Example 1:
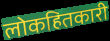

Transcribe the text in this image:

लोकहितकारी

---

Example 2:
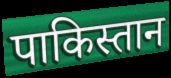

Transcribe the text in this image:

पाकिस्तान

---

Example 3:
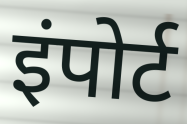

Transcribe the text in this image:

इंपोर्ट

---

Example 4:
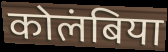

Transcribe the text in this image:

कोलंबिया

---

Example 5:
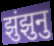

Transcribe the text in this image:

झुंझुनु